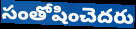
సంతోషించెదరు